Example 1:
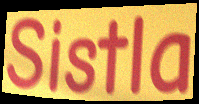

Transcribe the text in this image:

Sistla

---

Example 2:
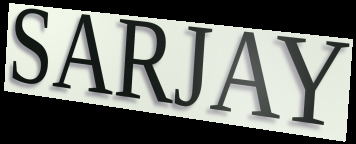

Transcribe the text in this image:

SARJAY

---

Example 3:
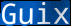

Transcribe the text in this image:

Guix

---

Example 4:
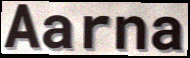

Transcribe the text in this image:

Aarna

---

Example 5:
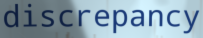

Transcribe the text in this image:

discrepancy